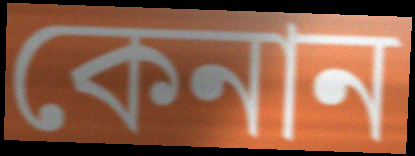
কেনান